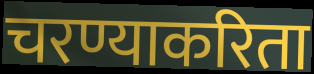
चरण्याकरिता